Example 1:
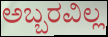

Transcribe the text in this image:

ಅಬ್ಬರವಿಲ್ಲ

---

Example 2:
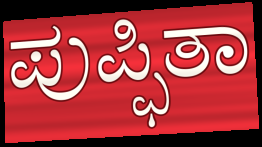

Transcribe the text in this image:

ಪುಪ್ಫಿತಾ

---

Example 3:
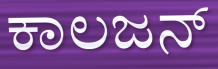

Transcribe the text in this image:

ಕಾಲಜನ್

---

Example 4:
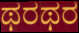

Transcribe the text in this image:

ಥರಥರ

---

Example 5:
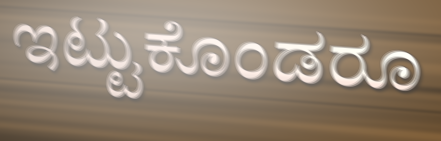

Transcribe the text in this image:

ಇಟ್ಟುಕೊಂಡರೂ